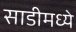
साडीमध्ये